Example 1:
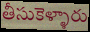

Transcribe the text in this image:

తీసుకెళ్ళారు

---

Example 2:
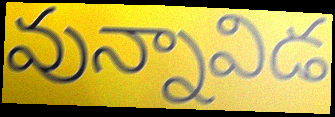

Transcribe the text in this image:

వున్నావిడ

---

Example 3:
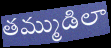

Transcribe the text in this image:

తమ్ముడిలా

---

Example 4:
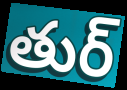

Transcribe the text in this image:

తుర్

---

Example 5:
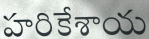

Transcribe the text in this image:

హరికేశాయ